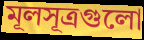
মূলসূত্রগুলো